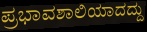
ಪ್ರಭಾವಶಾಲಿಯಾದದ್ದು